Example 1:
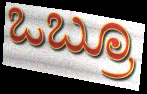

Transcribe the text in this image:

ಒಬ್ರೂ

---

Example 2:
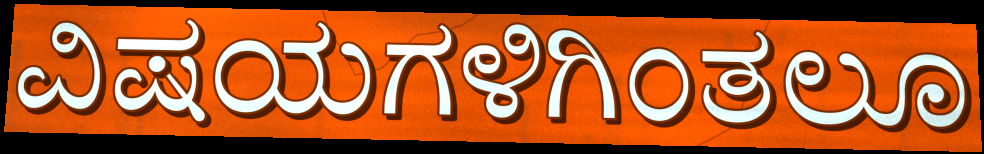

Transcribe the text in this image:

ವಿಷಯಗಳಿಗಿಂತಲೂ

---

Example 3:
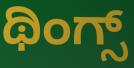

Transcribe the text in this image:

ಥಿಂಗ್ಸ್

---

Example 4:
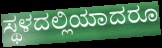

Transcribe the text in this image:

ಸ್ಥಳದಲ್ಲಿಯಾದರೂ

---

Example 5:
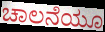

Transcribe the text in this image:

ಚಾಲನೆಯೂ